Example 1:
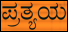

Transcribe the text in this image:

ಪ್ರತ್ಯಯ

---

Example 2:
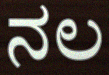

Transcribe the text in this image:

ನಲ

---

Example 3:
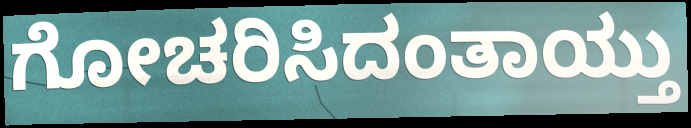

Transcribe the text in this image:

ಗೋಚರಿಸಿದಂತಾಯ್ತು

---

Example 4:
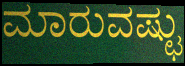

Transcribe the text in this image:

ಮಾರುವಷ್ಟು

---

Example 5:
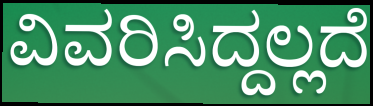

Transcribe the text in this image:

ವಿವರಿಸಿದ್ದಲ್ಲದೆ